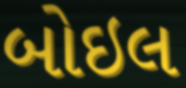
બોઇલ